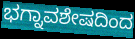
ಭಗ್ನಾವಶೇಷದಿಂದ